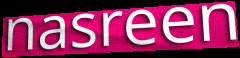
nasreen